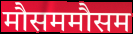
मौसममौसम